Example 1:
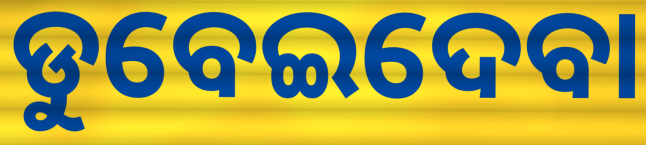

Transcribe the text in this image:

ଡୁବେଇଦେବା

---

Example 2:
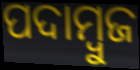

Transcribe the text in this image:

ପଦାମ୍ବୁଜ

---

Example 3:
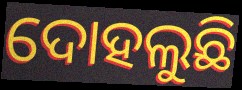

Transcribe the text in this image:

ଦୋହଲୁଛି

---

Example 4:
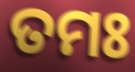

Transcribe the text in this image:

ତମଃ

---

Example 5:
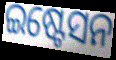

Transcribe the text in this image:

ଇଷ୍ଟେସନ